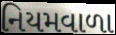
નિયમવાળા